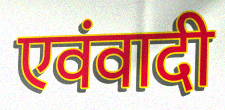
एवंवादी